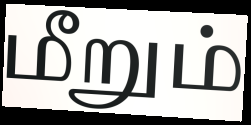
மீறும்